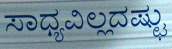
ಸಾಧ್ಯವಿಲ್ಲದಷ್ಟು